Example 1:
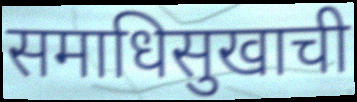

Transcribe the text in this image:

समाधिसुखाची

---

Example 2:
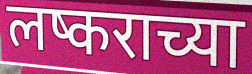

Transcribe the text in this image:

लष्कराच्या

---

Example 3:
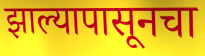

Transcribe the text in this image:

झाल्यापासूनचा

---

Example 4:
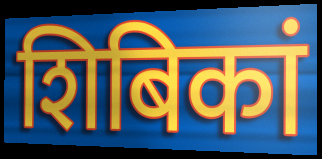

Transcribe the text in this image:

शिबिकां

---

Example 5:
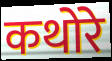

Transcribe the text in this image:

कथोरे